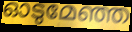
ഓടുമേഞ്ഞ